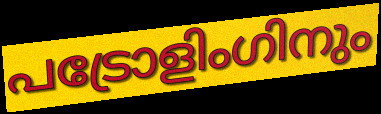
പട്രോളിംഗിനും